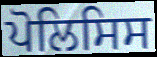
ਪੋਲਿਸਿਸ